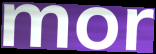
mor